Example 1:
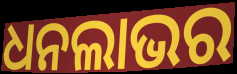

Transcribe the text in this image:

ଧନଲାଭର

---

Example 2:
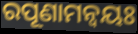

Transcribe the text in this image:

ରପୂଣାମନ୍ଵୟଃ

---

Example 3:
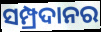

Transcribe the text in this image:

ସମ୍ପ୍ରଦାନର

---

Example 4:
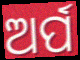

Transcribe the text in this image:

ଅର୍ପ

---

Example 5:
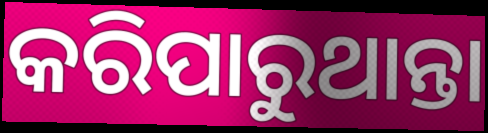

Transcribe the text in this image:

କରିପାରୁଥାନ୍ତା